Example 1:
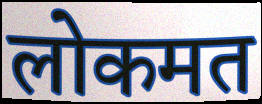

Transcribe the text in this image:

लोकमत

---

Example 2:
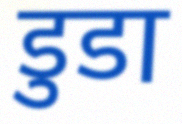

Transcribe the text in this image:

डुडा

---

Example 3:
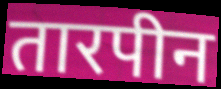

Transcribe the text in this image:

तारपीन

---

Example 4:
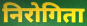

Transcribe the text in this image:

निरोगिता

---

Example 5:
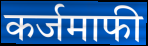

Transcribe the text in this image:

कर्जमाफी